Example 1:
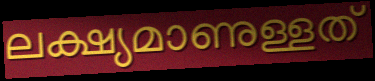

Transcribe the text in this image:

ലക്ഷ്യമാണുള്ളത്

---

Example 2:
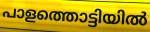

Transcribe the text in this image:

പാളത്തൊട്ടിയിൽ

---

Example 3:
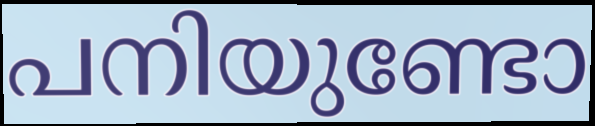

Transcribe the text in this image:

പനിയുണ്ടോ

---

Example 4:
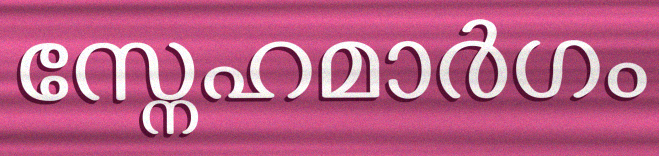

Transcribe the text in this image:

സ്നേഹമാർഗം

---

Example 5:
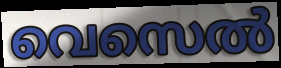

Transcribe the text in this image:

വെസെൽ